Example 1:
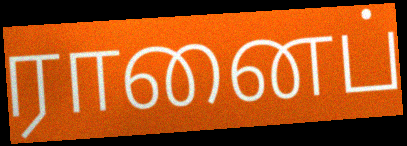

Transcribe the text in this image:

ரானைப்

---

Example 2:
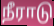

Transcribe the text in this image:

நீராடு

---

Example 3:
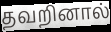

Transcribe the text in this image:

தவறினால்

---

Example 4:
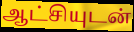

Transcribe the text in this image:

ஆட்சியுடன்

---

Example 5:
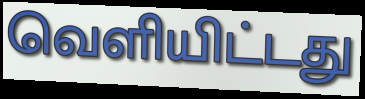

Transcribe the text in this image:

வெளியிட்டது